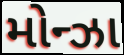
મોન્ઝા